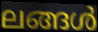
ലങ്ങൾ